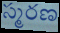
స్మరణ